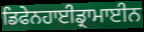
ਡਿਫੇਨਹਾਈਡ੍ਰਾਮਾਈਨ